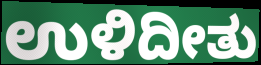
ಉಳಿದೀತು